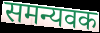
समन्यवक